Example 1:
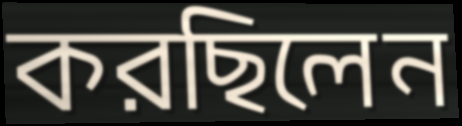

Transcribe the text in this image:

করছিলেন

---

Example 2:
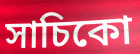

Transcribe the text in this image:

সাচিকো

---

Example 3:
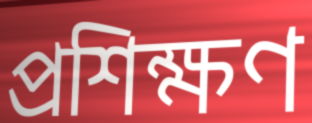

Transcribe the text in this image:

প্রশিক্ষণ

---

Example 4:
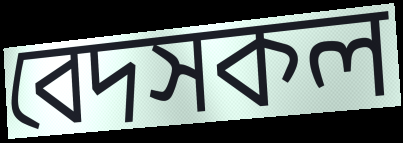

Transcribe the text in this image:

বেদসকল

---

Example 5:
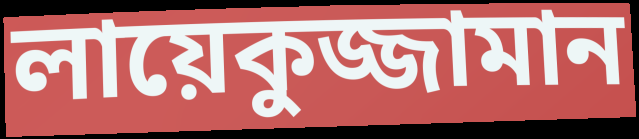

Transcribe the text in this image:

লায়েকুজ্জামান